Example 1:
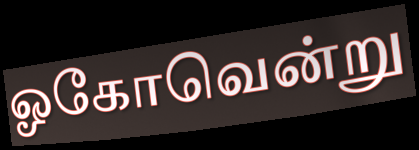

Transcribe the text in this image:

ஓகோவென்று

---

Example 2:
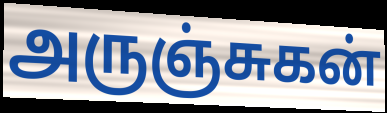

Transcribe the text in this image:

அருஞ்சுகன்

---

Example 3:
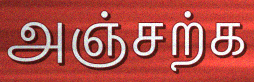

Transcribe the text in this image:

அஞ்சற்க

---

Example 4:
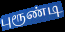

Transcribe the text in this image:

புரூண்டி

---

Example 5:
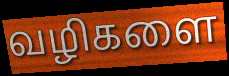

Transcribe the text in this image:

வழிகளை